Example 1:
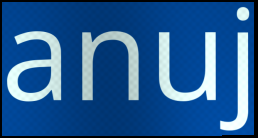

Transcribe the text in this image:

anuj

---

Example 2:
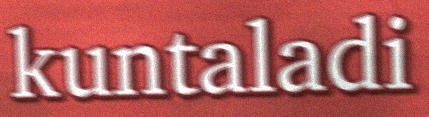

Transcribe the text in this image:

kuntaladi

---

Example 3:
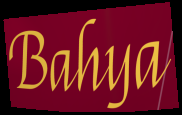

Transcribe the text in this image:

Bahya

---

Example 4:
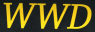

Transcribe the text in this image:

WWD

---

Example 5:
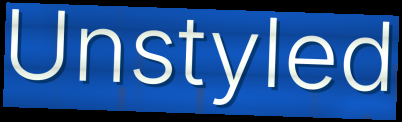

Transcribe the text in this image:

Unstyled